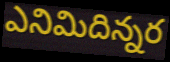
ఎనిమిదిన్నర